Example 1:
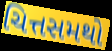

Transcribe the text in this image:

ચિત્તસમથો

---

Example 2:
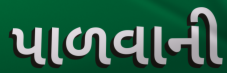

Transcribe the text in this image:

પાળવાની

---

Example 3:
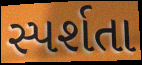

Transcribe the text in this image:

સ્પર્શતા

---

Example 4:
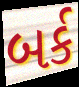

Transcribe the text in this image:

બર્ક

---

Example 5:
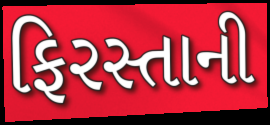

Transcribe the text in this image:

ફિરસ્તાની